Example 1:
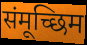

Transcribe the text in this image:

संमूच्छिम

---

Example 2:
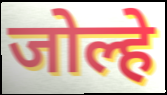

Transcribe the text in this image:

जोल्हे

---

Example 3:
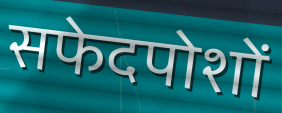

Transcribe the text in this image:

सफेदपोशों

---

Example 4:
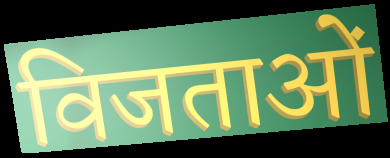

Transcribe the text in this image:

विजताओं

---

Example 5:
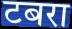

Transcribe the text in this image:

टबरा